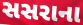
સસરાના